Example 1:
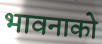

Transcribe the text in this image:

भावनाको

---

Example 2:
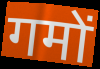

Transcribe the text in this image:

गमों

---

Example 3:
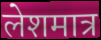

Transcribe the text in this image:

लेशमात्र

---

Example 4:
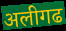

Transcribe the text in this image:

अलीगढ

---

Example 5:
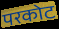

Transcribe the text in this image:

परकोट